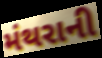
મંથરાની